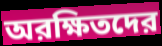
অরক্ষিতদের